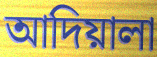
আদিয়ালা